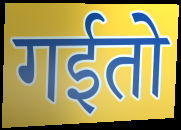
गईतो